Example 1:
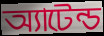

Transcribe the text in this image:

অ্যাটেন্ড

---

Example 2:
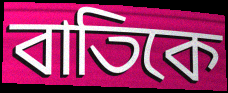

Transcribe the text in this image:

বাতিকে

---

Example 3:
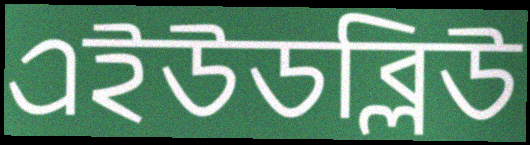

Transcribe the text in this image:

এইউডব্লিউ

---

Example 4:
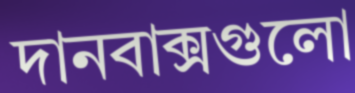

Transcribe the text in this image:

দানবাক্সগুলো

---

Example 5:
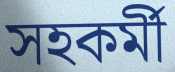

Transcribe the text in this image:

সহকর্মী